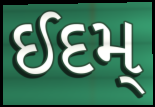
ઈદમ્